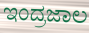
ಇಂದ್ರಜಾಲ